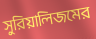
সুরিয়ালিজমের